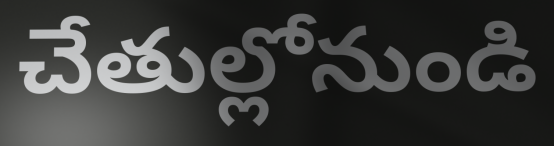
చేతుల్లోనుండి